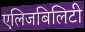
एलिजबिलिटी